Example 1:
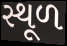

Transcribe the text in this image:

સ્થૂળ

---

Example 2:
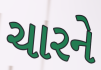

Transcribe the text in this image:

ચારને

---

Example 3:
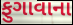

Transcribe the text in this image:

ફુગાવાના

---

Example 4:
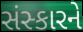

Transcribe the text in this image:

સંસ્કારને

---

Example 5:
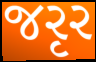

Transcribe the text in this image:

જરૃર